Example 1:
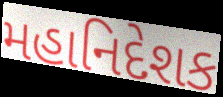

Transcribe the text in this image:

મહાનિદેશક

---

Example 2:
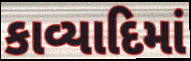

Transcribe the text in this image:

કાવ્યાદિમાં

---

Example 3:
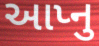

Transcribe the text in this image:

આપ્નુ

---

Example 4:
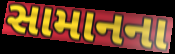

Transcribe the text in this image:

સામાનના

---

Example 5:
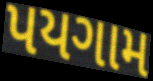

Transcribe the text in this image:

પયગામ